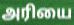
அரியை